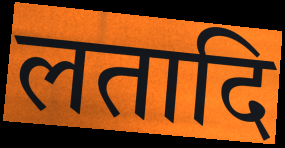
लतादि